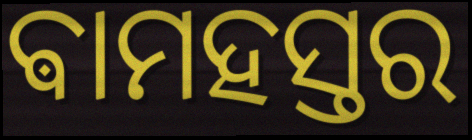
ଵାମହସ୍ତର